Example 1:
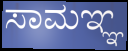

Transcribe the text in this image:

ಸಾಮಞ್ಞ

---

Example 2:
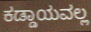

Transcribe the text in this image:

ಕಡ್ಡಾಯವಲ್ಲ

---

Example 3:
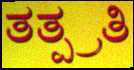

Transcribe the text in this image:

ತತ್ಪ್ರತಿ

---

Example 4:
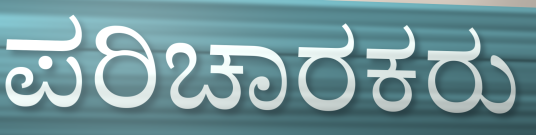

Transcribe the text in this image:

ಪರಿಚಾರಕರು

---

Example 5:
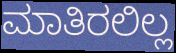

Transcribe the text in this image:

ಮಾತಿರಲಿಲ್ಲ